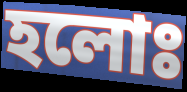
হলোঃ